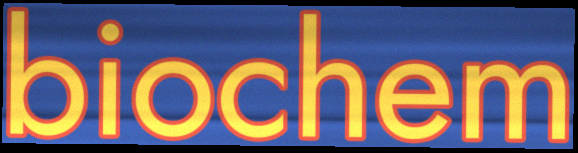
biochem